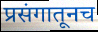
प्रसंगातूनच